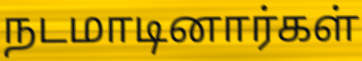
நடமாடினார்கள்